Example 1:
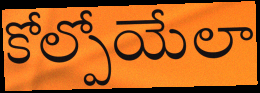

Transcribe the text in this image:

కోల్పోయేలా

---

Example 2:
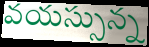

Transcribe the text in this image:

వయస్సున్న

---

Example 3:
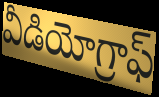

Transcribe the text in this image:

వీడియోగ్రాఫ్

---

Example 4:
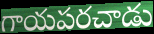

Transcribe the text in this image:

గాయపరచాడు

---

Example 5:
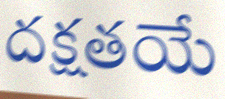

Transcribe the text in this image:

దక్షతయే